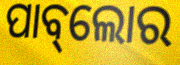
ପାବ୍‌ଲୋର